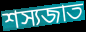
শস্যজাত